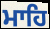
ਮਾਹਿ